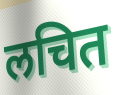
लचित